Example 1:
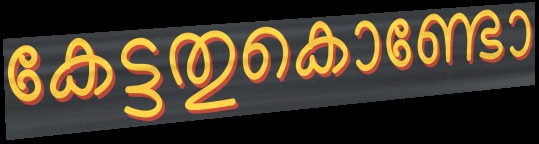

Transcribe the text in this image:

കേട്ടതുകൊണ്ടോ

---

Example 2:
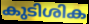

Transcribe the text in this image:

കുടിശിക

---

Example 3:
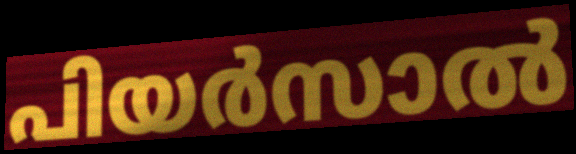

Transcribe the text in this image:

പിയർസാൽ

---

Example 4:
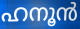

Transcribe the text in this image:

ഹനൂൻ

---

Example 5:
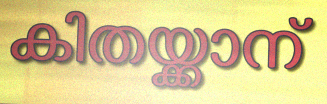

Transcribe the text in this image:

കിതയ്ക്കാന്